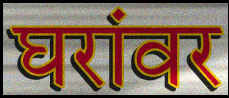
घरांवर